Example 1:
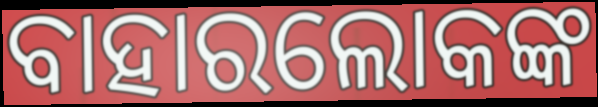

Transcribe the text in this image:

ବାହାରଲୋକଙ୍କ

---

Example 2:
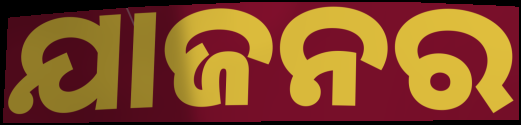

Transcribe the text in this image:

ଯାଜନର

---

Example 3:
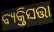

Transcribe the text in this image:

ବ୍ୟକ୍ତିସତ୍ତା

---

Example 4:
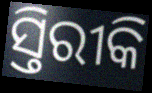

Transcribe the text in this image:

ସ୍ତିରୀକି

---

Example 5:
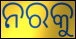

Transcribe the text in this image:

ନରକୁ